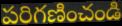
పరిగణించండి